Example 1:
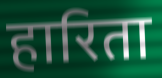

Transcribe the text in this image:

हारिता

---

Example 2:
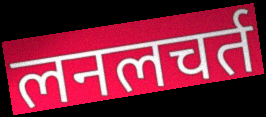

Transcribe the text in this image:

लनलचर्त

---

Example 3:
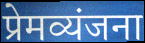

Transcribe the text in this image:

प्रेमव्यंजना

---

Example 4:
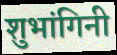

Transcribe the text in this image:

शुभांगिनी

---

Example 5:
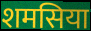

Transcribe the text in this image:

शमसिया